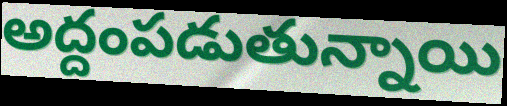
అద్దంపడుతున్నాయి